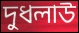
দুধলাউ